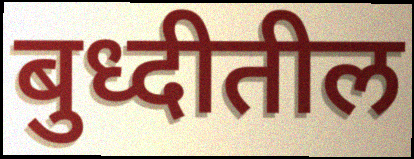
बुध्दीतील